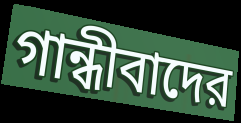
গান্ধীবাদের